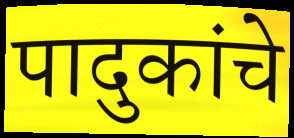
पादुकांचे